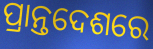
ପ୍ରାନ୍ତଦେଶରେ